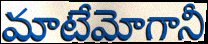
మాటేమోగానీ